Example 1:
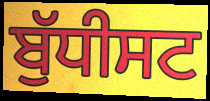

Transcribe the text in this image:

ਬੁੱਧੀਸਟ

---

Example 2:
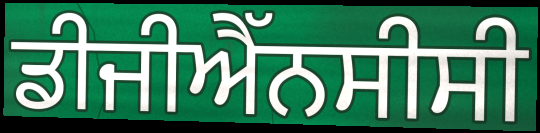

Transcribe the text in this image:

ਡੀਜੀਐੱਨਸੀਸੀ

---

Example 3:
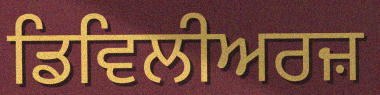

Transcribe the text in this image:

ਡਿਵਿਲੀਅਰਜ਼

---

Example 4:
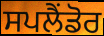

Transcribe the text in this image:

ਸਪਲੈਂਡੋਰ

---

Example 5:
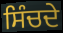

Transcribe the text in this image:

ਸਿੰਚਦੇ